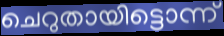
ചെറുതായിട്ടൊന്ന്